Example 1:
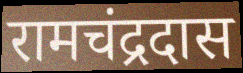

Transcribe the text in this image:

रामचंद्रदास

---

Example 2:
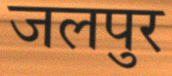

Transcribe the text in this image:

जलपुर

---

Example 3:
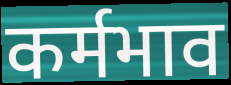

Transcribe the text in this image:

कर्मभाव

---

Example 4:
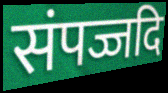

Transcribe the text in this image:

संपज्जदि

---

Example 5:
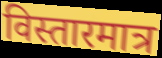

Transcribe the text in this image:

विस्तारमात्र